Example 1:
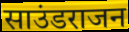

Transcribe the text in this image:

साउंडराजन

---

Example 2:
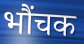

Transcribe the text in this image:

भौंचक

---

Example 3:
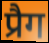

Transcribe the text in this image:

प्रैग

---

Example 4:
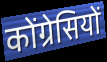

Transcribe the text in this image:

कोंग्रेसियों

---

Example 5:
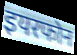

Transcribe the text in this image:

इयरफोन